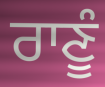
ਰਾਣੂੰ